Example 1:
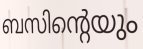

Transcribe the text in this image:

ബസിന്റെയും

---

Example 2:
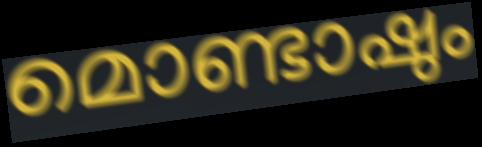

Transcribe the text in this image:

മൊണ്ടാഷും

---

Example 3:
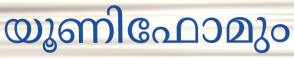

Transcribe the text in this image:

യൂണിഫോമും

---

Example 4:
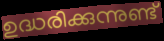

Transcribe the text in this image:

ഉദ്ധരിക്കുന്നുണ്ട്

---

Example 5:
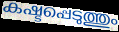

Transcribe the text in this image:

കഷ്ടപ്പെടുത്തും